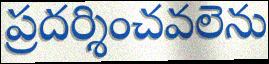
ప్రదర్శించవలెను